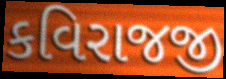
કવિરાજજી